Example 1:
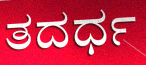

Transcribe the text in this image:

ತದರ್ಧ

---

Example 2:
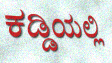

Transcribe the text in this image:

ಕಡ್ಡಿಯಲ್ಲಿ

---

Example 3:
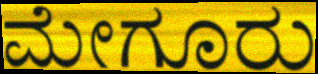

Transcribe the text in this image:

ಮೇಗೂರು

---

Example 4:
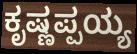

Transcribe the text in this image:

ಕೃಷ್ಣಪ್ಪಯ್ಯ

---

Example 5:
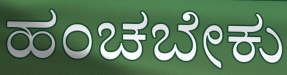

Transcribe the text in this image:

ಹಂಚಬೇಕು